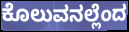
ಕೊಲುವನಲ್ಲೆಂದ